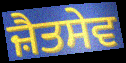
ਜ਼ੈਤਸੇਵ